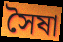
সৈষা